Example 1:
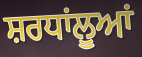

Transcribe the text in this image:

ਸ਼ਰਧਾਂਲੂਆਂ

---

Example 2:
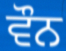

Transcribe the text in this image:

ਵੌਨ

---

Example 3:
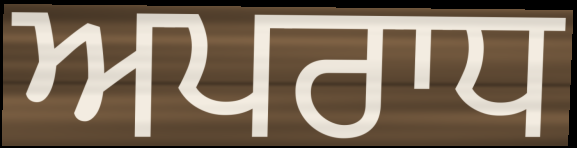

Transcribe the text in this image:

ਅਪਰਾਧ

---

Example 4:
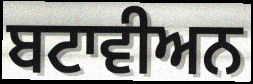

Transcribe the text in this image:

ਬਟਾਵੀਅਨ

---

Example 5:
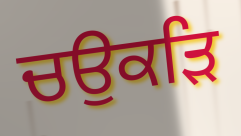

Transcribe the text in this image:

ਚਉਕੜਿ